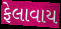
ફેલાવાય